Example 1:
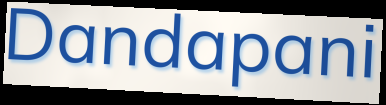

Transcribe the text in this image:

Dandapani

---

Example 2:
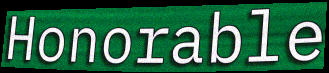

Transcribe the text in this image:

Honorable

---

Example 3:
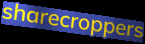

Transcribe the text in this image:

sharecroppers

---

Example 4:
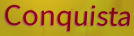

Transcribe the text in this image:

Conquista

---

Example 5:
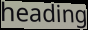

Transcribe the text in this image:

heading